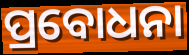
ପ୍ରବୋଧନା